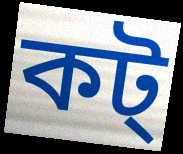
কট্